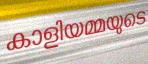
കാളിയമ്മയുടെ